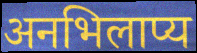
अनभिलाप्य